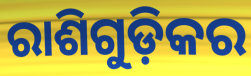
ରାଶିଗୁଡ଼ିକର